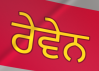
ਰੇਵੇਨ